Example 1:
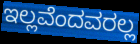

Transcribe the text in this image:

ಇಲ್ಲವೆಂದವರಲ್ಲ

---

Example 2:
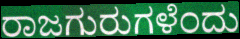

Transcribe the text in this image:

ರಾಜಗುರುಗಳೆಂದು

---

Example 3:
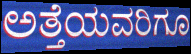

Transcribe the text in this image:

ಅತ್ತೆಯವರಿಗೂ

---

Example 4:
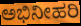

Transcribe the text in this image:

ಅಭಿನೀಹರಿ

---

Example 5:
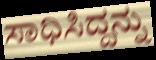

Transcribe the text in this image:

ಸಾಧಿಸಿದ್ದನ್ನು